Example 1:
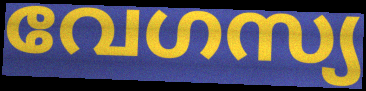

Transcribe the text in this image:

വേഗസ്യ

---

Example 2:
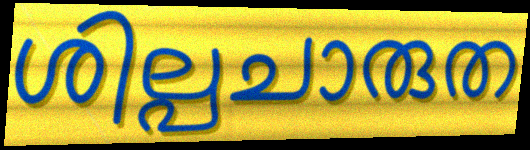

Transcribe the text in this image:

ശില്പചാരുത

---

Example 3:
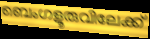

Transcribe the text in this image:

ബെംഗളൂരുവിലേക്ക്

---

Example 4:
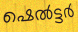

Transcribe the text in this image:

ഷെൽട്ടർ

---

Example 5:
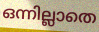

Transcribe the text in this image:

ഒന്നില്ലാതെ